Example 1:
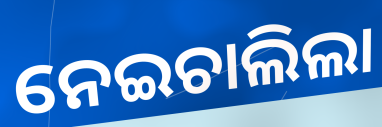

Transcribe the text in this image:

ନେଇଚାଲିଲା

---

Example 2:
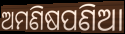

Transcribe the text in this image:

ଅମଣିଷପଣିଆ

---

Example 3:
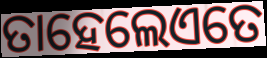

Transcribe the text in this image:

ତାହେଲେଏତେ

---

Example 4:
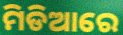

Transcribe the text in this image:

ମିଡିଆରେ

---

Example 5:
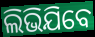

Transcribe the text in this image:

ଲିଭିଯିବେ